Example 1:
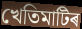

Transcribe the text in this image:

খেতিমাটিৰ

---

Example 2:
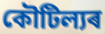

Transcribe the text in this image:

কৌটিল্যৰ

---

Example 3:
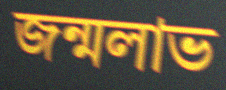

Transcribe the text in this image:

জন্মলাভ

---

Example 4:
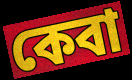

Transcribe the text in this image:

কেবা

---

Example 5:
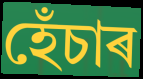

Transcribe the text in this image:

হেঁচাৰ